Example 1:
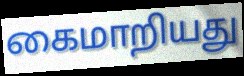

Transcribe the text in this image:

கைமாறியது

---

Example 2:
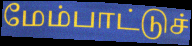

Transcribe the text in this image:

மேம்பாட்டுச்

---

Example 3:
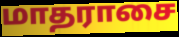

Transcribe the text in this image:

மாதராசை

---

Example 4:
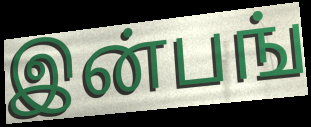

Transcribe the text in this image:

இன்பங்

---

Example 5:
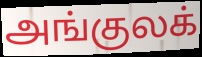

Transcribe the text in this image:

அங்குலக்